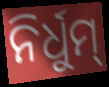
ନିର୍ଧୁମ୍